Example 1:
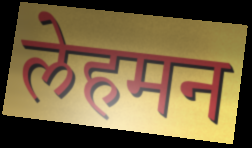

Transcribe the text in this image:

लेहमन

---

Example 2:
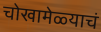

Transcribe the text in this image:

चोखामेळ्याचं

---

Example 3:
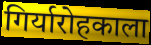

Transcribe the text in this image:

गिर्यारोहकाला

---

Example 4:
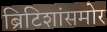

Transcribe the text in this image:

ब्रिटिशांसमोर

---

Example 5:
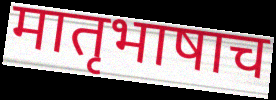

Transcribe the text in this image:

मातृभाषाच